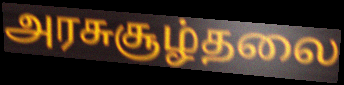
அரசுசூழ்தலை